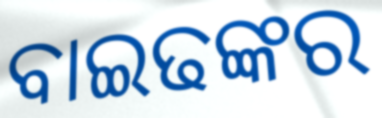
ବାଇଢଙ୍କର